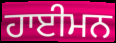
ਹਾਈਮਨ